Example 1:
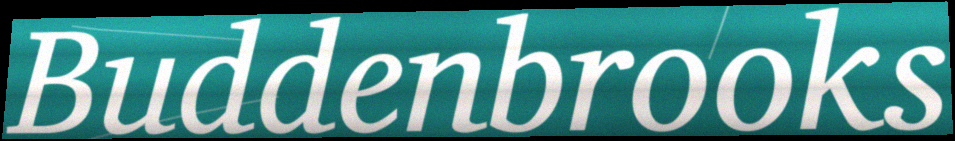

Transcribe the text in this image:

Buddenbrooks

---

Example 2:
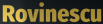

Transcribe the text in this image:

Rovinescu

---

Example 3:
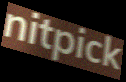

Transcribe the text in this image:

nitpick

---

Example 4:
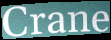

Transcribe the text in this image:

Crane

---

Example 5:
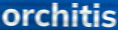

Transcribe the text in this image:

orchitis